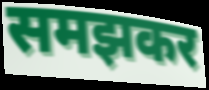
समझकर